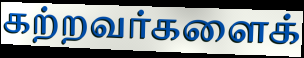
கற்றவர்களைக்